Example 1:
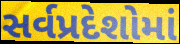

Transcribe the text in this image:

સર્વપ્રદેશોમાં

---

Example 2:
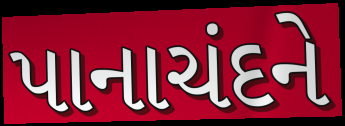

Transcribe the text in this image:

પાનાચંદને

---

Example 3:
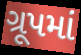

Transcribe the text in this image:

ગ્રૂપમાં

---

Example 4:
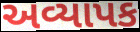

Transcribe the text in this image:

અવ્યાપક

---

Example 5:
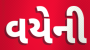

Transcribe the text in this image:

વયેની